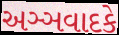
અઞ્ઞવાદકે